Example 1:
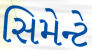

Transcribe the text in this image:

સિમેન્ટે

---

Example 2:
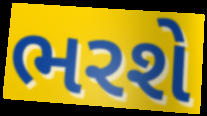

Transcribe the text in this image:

ભરશે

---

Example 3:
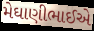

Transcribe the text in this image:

મેઘાણીભાઈએ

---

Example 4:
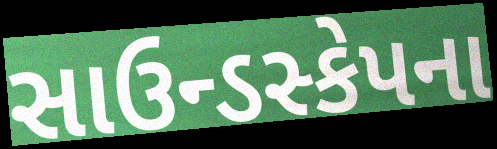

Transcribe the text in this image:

સાઉન્ડસ્કેપના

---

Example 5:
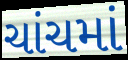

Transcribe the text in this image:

ચાંચમાં